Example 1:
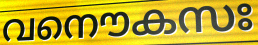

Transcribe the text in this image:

വനൌകസഃ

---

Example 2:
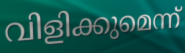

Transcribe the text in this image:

വിളിക്കുമെന്ന്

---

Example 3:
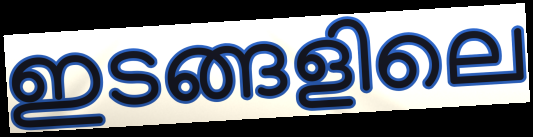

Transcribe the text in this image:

ഇടങ്ങളിലെ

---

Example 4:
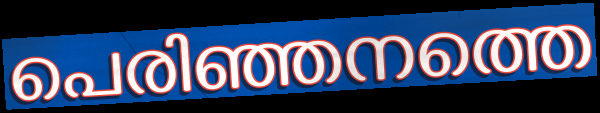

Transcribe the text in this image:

പെരിഞ്ഞനത്തെ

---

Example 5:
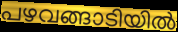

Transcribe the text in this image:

പഴവങ്ങാടിയിൽ